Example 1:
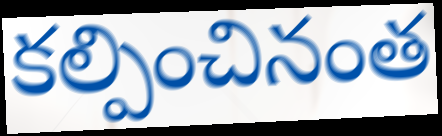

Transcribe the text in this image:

కల్పించినంత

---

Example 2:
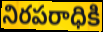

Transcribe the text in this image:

నిరపరాధికి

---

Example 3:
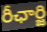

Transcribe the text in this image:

రీఛార్జి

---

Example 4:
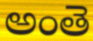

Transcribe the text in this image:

అంతె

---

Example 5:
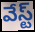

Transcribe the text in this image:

వేస్ట్